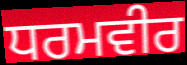
ਧਰਮਵੀਰ